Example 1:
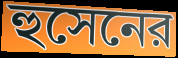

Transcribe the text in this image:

হুসেনের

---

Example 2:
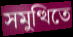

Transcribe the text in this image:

সমুত্থিতে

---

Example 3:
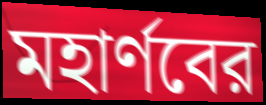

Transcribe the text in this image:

মহার্ণবের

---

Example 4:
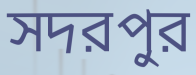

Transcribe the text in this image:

সদরপুর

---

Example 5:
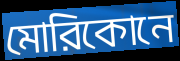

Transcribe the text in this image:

মোরিকোনে